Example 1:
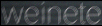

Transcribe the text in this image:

weinete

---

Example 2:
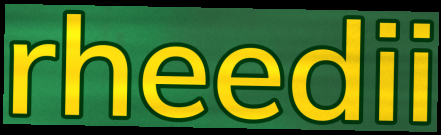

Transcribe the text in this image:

rheedii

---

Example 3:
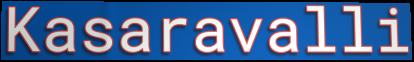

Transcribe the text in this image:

Kasaravalli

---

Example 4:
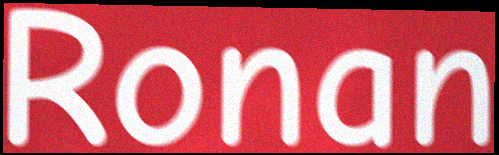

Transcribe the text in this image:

Ronan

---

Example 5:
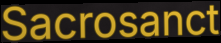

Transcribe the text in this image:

Sacrosanct